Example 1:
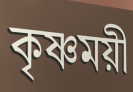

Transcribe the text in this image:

কৃষ্ণময়ী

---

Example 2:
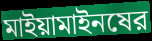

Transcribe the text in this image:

মাইয়ামাইনষের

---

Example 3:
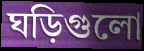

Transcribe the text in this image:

ঘড়িগুলো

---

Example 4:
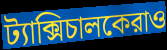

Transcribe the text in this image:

ট্যাক্সিচালকেরাও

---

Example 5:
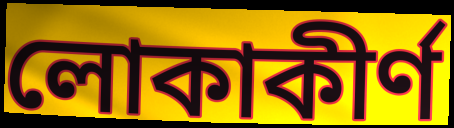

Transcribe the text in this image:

লোকাকীর্ণ